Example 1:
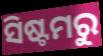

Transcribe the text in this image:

ସିଷ୍ଟମରୁ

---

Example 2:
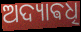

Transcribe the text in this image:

ଅଦ୍ୟାଵଧି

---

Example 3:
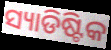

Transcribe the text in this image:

ସ୍ୟାଡିଷ୍ଟିକ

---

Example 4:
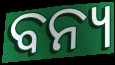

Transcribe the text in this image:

ବନ୍ୟ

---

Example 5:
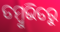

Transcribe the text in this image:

ତମ୍ବୁଭିତରୁ